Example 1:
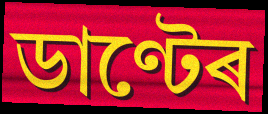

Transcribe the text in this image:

ডাণ্টেৰ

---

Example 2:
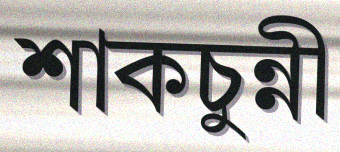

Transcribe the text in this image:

শাকচুন্নী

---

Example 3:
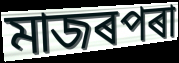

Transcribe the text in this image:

মাজৰপৰা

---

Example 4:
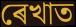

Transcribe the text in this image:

ৰেখাত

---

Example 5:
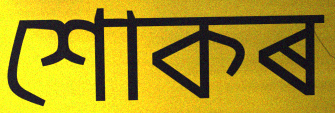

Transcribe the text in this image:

শোকৰ